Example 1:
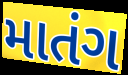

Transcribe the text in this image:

માતંગ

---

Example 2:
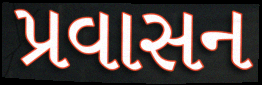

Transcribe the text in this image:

પ્રવાસન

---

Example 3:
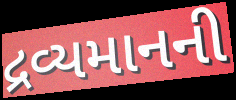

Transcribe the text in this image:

દ્રવ્યમાનની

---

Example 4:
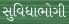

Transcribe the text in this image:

સુવિધાભોગી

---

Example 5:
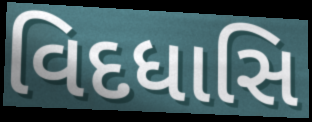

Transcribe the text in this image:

વિદધાસિ